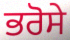
ਭਰੋਸੇ